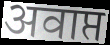
अवाप्त